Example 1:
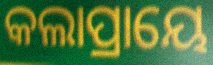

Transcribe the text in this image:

କଲାପ୍ରାୟେ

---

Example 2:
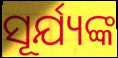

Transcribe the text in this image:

ସୂର୍ଯ୍ୟଙ୍କ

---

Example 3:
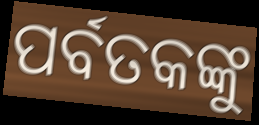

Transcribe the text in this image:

ପର୍ବତକଙ୍କୁ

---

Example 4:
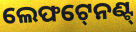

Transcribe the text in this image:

ଲେଫଟ୍‍ନେଣ୍ଟ୍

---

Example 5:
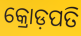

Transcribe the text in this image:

କ୍ରୋଡ଼ପତି